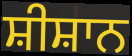
ਸ਼ੀਸ਼ਾਨ